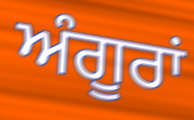
ਅੰਗੂਰਾਂ